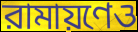
রামায়ণেও